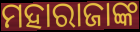
ମହାରାଜାଙ୍କ